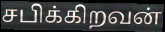
சபிக்கிறவன்